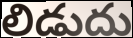
లిడుదు